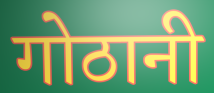
गोठानी